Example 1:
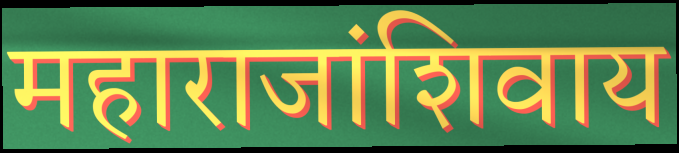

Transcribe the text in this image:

महाराजांशिवाय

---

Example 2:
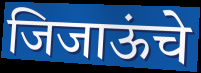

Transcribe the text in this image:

जिजाऊंचे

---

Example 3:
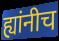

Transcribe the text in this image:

ह्यांनीच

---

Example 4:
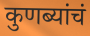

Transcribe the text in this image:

कुणब्यांचं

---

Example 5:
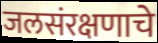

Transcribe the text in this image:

जलसंरक्षणाचे